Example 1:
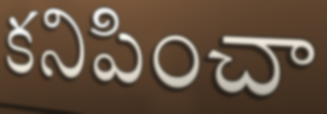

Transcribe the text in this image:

కనిపించా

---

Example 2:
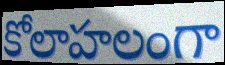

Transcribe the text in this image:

కోలాహలంగా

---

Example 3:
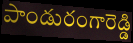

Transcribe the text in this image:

పాండురంగారెడ్డి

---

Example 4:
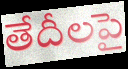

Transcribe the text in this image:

తేదీలపై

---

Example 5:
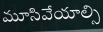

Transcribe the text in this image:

మూసివేయాల్సి